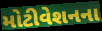
મોટીવેશનના